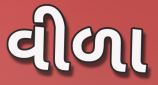
વીળા